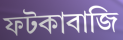
ফটকাবাজি